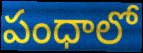
పంధాలో